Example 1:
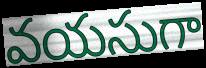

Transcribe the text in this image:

వయసుగా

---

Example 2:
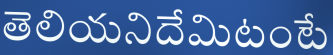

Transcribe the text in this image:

తెలియనిదేమిటంటే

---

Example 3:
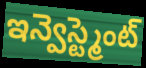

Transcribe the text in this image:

ఇన్వెస్ట్మెంట్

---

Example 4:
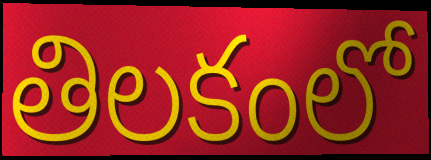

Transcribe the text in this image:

తిలకంలో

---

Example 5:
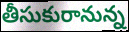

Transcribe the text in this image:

తీసుకురానున్న